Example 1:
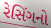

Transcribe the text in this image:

રેસિંગનો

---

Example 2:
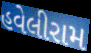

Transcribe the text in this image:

હવેલીરામ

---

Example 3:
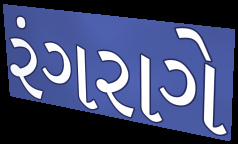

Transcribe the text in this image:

રંગરાગે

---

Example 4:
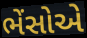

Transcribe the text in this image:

ભેંસોએ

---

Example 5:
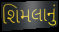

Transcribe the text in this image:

શિમલાનું